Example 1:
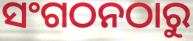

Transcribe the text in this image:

ସଂଗଠନଠାରୁ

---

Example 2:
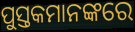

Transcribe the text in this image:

ପୁସ୍ତକମାନଙ୍କରେ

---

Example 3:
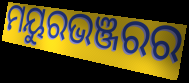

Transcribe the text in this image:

ମୟୁରଭଞ୍ଜରର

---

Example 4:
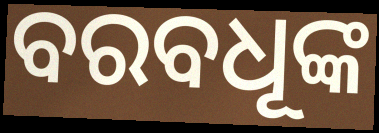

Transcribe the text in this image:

ବରବଧୂଙ୍କ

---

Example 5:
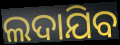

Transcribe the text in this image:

ଲଦାଯିବ